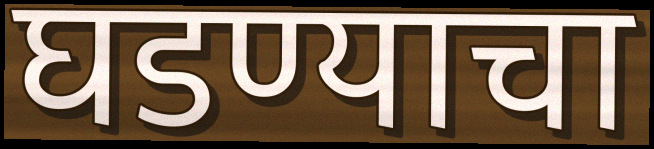
घडण्याचा